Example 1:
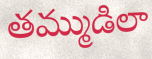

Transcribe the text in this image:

తమ్ముడిలా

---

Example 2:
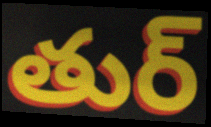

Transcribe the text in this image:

తుర్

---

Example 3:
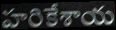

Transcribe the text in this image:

హరికేశాయ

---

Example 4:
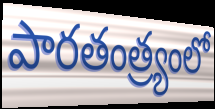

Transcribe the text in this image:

పారతంత్ర్యంలో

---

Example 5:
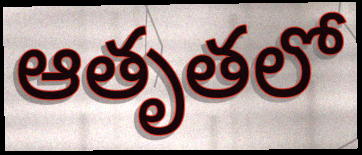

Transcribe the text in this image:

ఆతృతలో